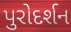
પુરોદર્શન